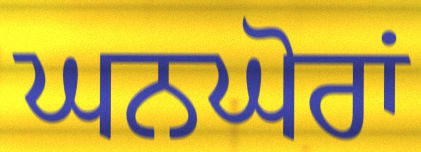
ਘਨਘੋਰਾਂ